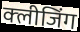
क्‍लीजिंग